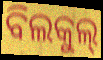
ବିଲକୁଲ୍